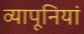
व्यापूनियां